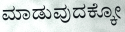
ಮಾಡುವುದಕ್ಕೋ